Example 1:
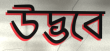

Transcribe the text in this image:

উদ্ভবে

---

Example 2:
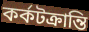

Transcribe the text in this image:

কর্কটক্রান্তি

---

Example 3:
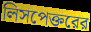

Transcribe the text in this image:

লিসপেক্তরের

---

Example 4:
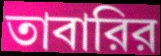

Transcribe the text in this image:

তাবারির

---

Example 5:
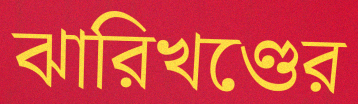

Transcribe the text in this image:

ঝারিখণ্ডের